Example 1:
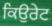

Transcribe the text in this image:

ਕਿਉਰੇਟ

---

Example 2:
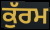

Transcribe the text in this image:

ਕੁੱਰਮ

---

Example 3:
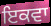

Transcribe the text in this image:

ਇਕਵਾ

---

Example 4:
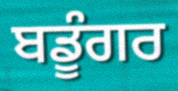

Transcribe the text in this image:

ਬਡੂੰਗਰ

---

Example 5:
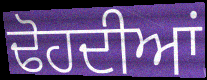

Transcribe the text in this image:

ਢੋਹਦੀਆਂ